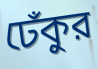
ঢেঁকুর